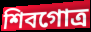
শিবগোত্র